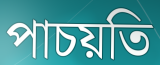
পাচয়তি